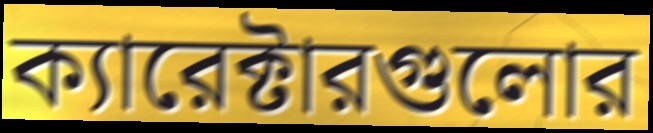
ক্যারেক্টারগুলোর